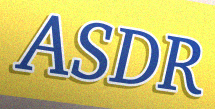
ASDR